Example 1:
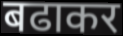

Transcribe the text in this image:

बढाकर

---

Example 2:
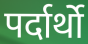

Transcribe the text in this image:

पर्दार्थो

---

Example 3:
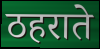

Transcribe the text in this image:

ठहराते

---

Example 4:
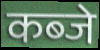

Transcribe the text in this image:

कब्‍जे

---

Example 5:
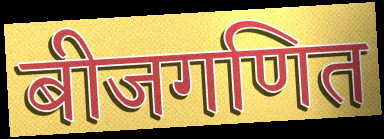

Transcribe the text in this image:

बीजगणित